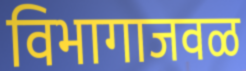
विभागाजवळ